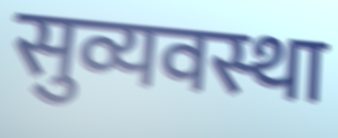
सुव्यवस्था